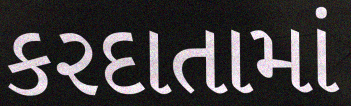
કરદાતામાં